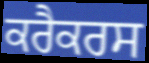
ਕਰੈਕਰਸ